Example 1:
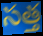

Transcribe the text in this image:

సత్త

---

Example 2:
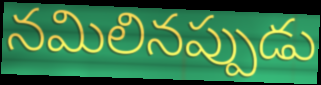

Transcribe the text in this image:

నమిలినప్పుడు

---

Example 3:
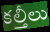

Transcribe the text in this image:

కల్తీలు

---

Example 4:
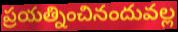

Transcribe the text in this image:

ప్రయత్నించినందువల్ల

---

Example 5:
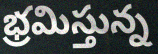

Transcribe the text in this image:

భ్రమిస్తున్న